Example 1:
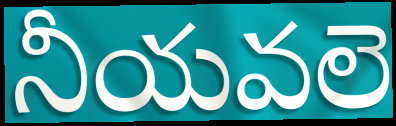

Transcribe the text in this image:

నీయవలె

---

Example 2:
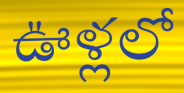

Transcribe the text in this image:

ఊళ్లలో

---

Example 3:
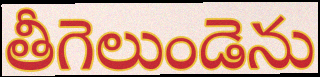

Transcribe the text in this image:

తీగెలుండెను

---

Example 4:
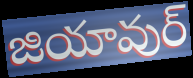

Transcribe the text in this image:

జియావుర్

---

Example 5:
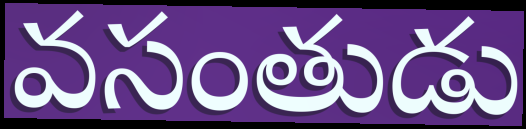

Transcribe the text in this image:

వసంతుడు